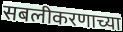
सबलीकरणाच्या